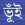
ভূঁই